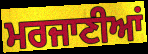
ਮਰਜਾਣੀਆਂ